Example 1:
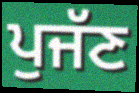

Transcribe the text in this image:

ਪੁਜੱਣ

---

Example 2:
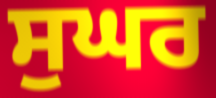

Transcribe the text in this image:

ਸੁਘਰ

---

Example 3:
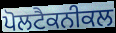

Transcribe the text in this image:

ਪੋਲਟੈਕਨੀਕਲ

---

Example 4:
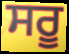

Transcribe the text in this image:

ਸਰੂ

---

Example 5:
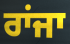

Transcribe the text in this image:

ਰਾਂਜਾ